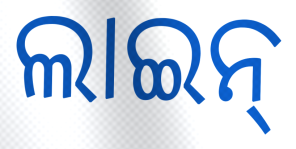
ଲାଇନ୍